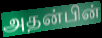
அதன்பின்